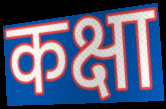
कक्षा